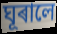
ঘূৰালে